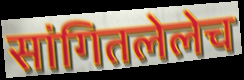
सांगितलेलेच